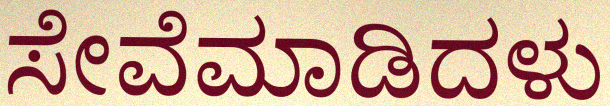
ಸೇವೆಮಾಡಿದಳು